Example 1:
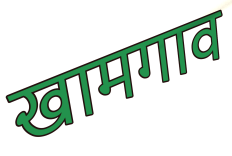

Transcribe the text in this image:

खामगाव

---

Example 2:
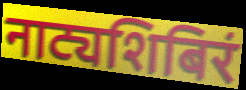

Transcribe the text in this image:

नाट्यशिबिरं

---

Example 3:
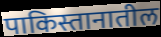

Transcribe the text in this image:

पाकिस्तानातील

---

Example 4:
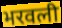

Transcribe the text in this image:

भरवली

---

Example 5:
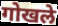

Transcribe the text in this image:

गोखले